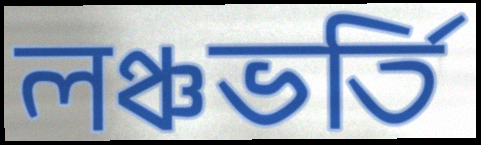
লঞ্চভর্তি